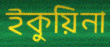
ইকুয়িনা